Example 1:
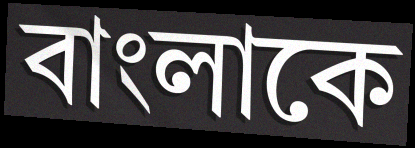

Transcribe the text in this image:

বাংলাকে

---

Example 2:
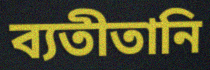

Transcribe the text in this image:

ব্যতীতানি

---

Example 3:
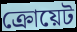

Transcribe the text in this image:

ক্রোয়েট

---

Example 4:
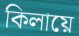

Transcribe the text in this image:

কিলায়ে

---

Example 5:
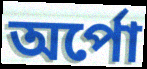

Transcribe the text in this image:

অর্পো